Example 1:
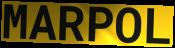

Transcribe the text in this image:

MARPOL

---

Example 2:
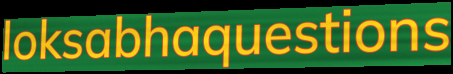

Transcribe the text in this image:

loksabhaquestions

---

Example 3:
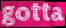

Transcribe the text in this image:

gotta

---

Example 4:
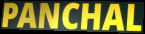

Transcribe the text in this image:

PANCHAL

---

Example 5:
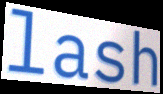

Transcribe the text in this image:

lash